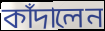
কাঁদালেন